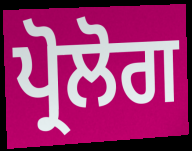
ਪ੍ਰੋਲੋਗ